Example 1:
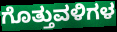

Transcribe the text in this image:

ಗೊತ್ತುವಳಿಗಳ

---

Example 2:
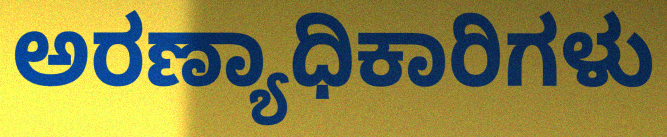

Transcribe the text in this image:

ಅರಣ್ಯಾಧಿಕಾರಿಗಳು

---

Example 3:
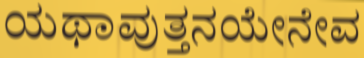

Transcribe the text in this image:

ಯಥಾವುತ್ತನಯೇನೇವ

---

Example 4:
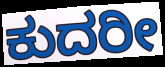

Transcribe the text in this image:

ಕುದರೀ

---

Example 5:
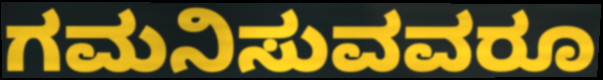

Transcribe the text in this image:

ಗಮನಿಸುವವರೂ